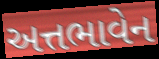
અત્તભાવેન